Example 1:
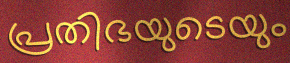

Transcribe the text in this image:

പ്രതിഭയുടെയും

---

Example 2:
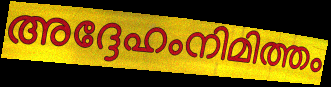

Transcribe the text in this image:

അദ്ദേഹംനിമിത്തം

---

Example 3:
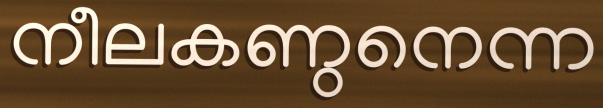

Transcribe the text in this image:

നീലകണ്ഠനെന്ന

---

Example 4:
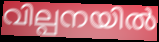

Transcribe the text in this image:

വില്പനയിൽ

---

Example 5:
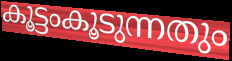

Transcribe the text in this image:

കൂട്ടംകൂടുന്നതും